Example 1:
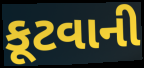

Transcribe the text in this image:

કૂટવાની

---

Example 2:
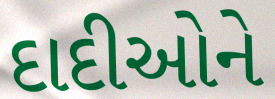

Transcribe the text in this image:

દાદીઓને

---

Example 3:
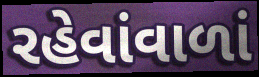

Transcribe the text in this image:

રહેવાંવાળાં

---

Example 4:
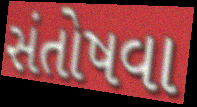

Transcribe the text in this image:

સંતોષવા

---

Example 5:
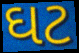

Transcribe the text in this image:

ઘટ